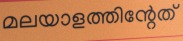
മലയാളത്തിന്റേത്